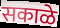
सकाळे